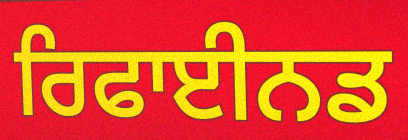
ਰਿਫਾਈਨਡ